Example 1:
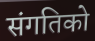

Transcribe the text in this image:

संगतिको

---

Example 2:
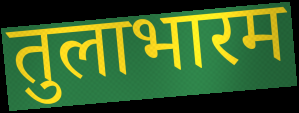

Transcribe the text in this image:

तुलाभारम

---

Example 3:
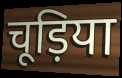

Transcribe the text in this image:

चूड़िया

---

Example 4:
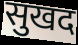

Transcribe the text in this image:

सुखद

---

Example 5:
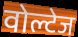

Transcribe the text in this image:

वोल्टेज